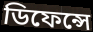
ডিফেন্সে